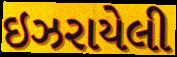
ઇઝરાયેલી